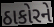
ઠાકોરને